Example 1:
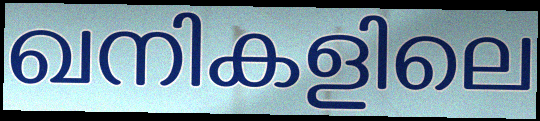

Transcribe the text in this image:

ഖനികളിലെ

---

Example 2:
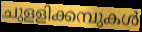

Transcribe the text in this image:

ചുളളിക്കമ്പുകൾ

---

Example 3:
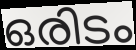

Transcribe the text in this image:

ഒരിടം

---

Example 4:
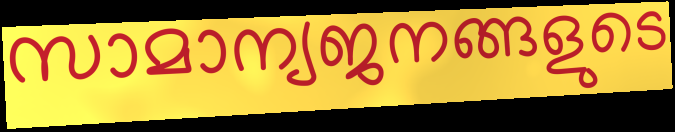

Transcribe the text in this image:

സാമാന്യജനങ്ങളുടെ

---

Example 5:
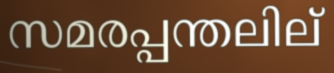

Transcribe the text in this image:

സമരപ്പന്തലില്